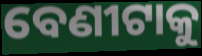
ବେଣୀଟାକୁ